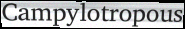
Campylotropous